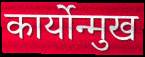
कार्योन्मुख